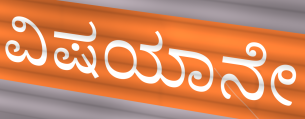
ವಿಷಯಾನೇ